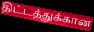
திட்டத்துக்கான